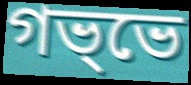
গভ্ভে